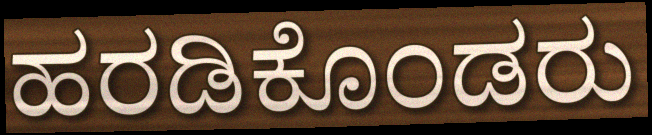
ಹರಡಿಕೊಂಡರು